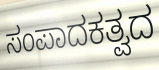
ಸಂಪಾದಕತ್ವದ